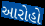
આરોહો